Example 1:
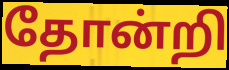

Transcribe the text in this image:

தோன்றி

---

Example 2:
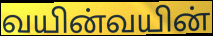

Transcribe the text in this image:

வயின்வயின்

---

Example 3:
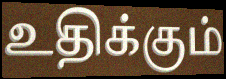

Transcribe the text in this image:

உதிக்கும்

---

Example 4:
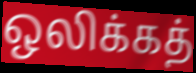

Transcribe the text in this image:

ஒலிக்கத்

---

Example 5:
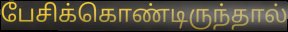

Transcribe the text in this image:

பேசிக்கொண்டிருந்தால்